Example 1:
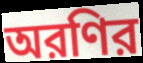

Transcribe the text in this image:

অরণির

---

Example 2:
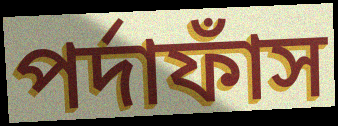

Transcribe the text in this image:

পর্দাফাঁস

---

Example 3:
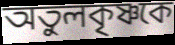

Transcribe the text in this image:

অতুলকৃষ্ণকে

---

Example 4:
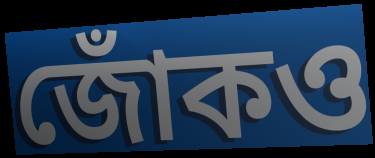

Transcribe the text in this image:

জোঁকও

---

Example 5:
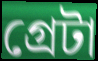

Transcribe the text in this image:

গ্রেটা